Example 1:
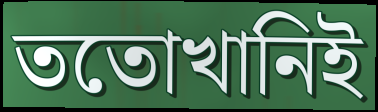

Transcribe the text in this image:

ততোখানিই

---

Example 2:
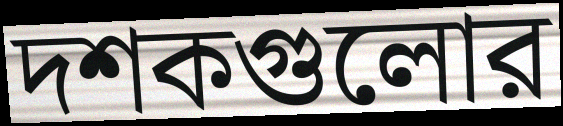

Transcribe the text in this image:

দশকগুলোর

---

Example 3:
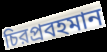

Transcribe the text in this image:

চিরপ্রবহমান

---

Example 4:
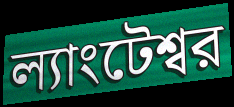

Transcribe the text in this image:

ল্যাংটেশ্বর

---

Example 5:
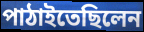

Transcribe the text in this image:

পাঠাইতেছিলেন